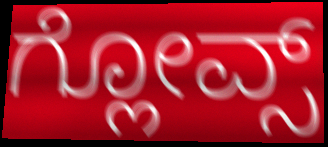
ಗ್ಲೋವ್ಸ್